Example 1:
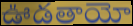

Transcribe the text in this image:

ఊడతాయో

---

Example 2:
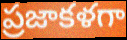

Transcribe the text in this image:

ప్రజాకళగా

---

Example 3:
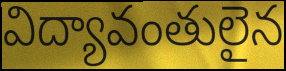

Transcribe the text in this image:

విద్యావంతులైన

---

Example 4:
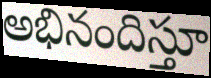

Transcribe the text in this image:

అభినందిస్తూ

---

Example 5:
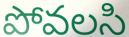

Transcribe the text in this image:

పోవలసి